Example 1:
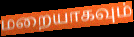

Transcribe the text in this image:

மறையாகவும்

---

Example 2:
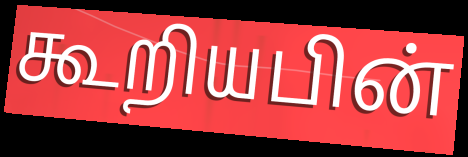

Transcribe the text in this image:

கூறியபின்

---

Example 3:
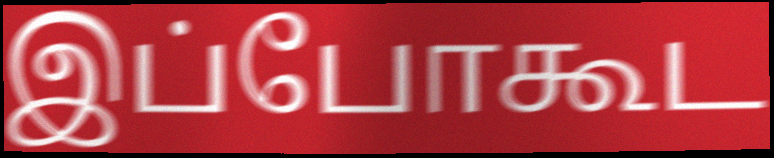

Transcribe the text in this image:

இப்போகூட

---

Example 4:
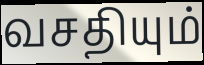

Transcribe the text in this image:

வசதியும்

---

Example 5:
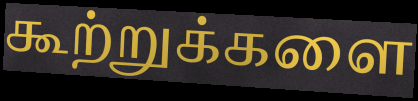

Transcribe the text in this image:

கூற்றுக்களை